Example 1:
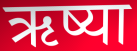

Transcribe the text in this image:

ऋष्या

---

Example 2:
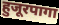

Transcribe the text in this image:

हुजूरपागा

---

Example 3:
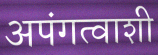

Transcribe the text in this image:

अपंगत्वाशी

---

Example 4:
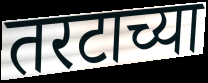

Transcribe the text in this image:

तरटाच्या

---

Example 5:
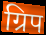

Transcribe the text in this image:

ग्रिप